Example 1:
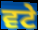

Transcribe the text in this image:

ਵਟੇ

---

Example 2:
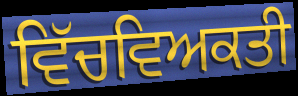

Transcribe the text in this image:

ਵਿੱਚਵਿਅਕਤੀ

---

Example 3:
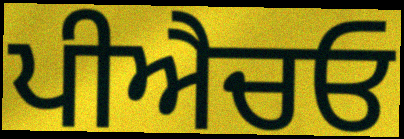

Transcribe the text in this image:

ਪੀਐਚਓ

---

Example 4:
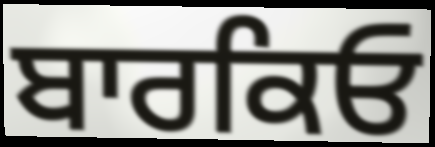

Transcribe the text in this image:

ਬਾਰਕਿਓ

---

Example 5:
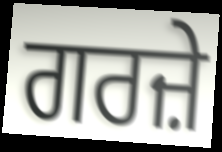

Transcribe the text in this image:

ਗਰਜ਼ੇ